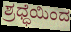
ಶ್ರಧ್ಧೆಯಿಂದ